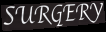
SURGERY